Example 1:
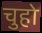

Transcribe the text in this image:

चुहो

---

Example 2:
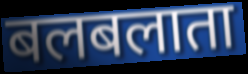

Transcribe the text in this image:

बलबलाता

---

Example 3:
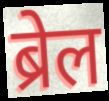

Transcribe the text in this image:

ब्रेल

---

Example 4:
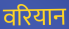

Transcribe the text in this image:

वरियान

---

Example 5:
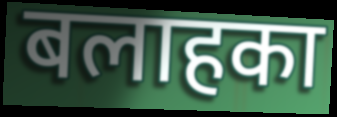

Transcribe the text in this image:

बलाहका